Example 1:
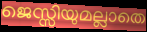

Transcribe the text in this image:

ജെസ്സിയുമല്ലാതെ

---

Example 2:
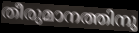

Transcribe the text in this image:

തീരുമാനത്തിനു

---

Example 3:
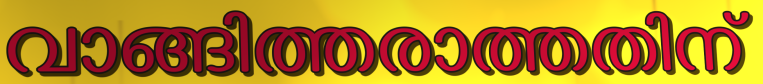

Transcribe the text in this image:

വാങ്ങിത്തരാത്തതിന്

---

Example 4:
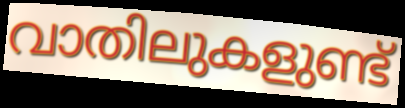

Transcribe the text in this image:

വാതിലുകളുണ്ട്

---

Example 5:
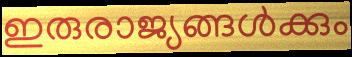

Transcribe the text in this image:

ഇരുരാജ്യങ്ങൾക്കും